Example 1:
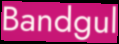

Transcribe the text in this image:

Bandgul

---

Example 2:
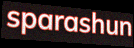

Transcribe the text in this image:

sparashun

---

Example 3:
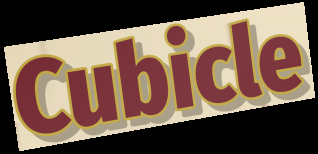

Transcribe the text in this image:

Cubicle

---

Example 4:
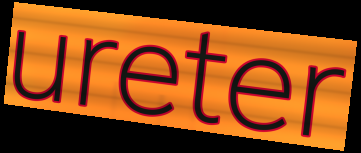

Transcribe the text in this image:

ureter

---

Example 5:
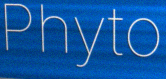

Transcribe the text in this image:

Phyto